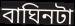
বাঘিনটা